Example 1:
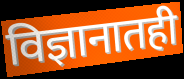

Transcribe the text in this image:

विज्ञानातही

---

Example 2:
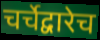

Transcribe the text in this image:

चर्चेद्वारेच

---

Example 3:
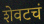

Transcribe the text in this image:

शेवटचं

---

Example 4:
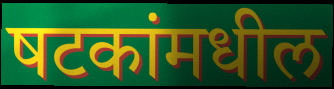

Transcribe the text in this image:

षटकांमधील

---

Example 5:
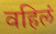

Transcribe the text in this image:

वहिलं